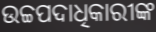
ଉଚ୍ଚପଦାଧିକାରୀଙ୍କ